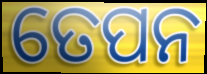
ତେପନ